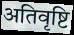
अतिवृष्टि